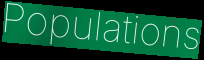
Populations